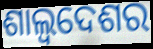
ଶାଲ୍ୱଦେଶର